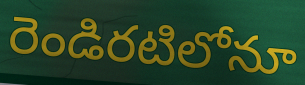
రెండిరటిలోనూ